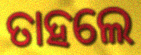
ତାହଲେ